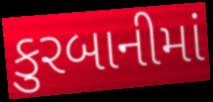
કુરબાનીમાં